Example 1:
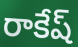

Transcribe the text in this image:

రాకేష్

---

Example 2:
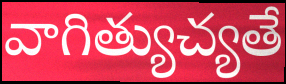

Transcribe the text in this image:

వాగిత్యుచ్యతే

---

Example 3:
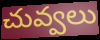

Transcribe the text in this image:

చువ్వలు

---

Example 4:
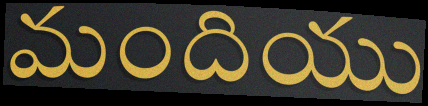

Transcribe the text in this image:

మందియు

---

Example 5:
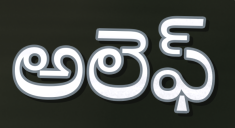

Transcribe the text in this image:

అలెఫ్